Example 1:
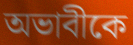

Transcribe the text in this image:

অভাবীকে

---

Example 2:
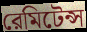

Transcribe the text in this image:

রেমিটেন্স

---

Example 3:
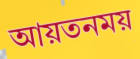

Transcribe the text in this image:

আয়তনময়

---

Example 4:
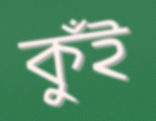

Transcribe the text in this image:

কুঁই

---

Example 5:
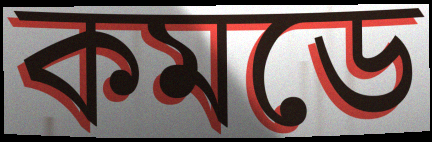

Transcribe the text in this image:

কমডে